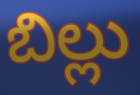
బిల్లు